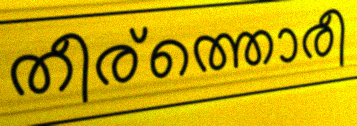
തീര്ത്തൊരീ